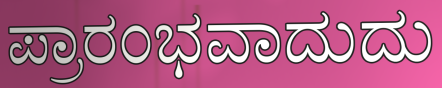
ಪ್ರಾರಂಭವಾದುದು